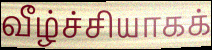
வீழ்ச்சியாகக்